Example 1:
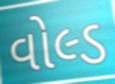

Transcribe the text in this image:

વોલ્ડ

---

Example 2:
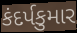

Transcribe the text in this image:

કંદર્પકુમાર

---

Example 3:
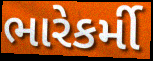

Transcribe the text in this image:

ભારેકર્મી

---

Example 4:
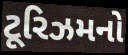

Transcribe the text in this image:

ટૂરિઝમનો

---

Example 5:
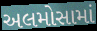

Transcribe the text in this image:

અલમોસામાં